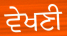
ਵੇਖਣੀ